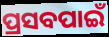
ପ୍ରସବପାଇଁ